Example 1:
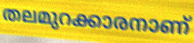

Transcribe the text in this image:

തലമുറക്കാരനാണ്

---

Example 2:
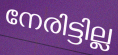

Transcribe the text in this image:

നേരിട്ടില്ല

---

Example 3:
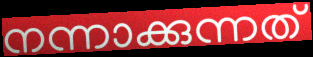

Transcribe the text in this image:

നന്നാക്കുന്നത്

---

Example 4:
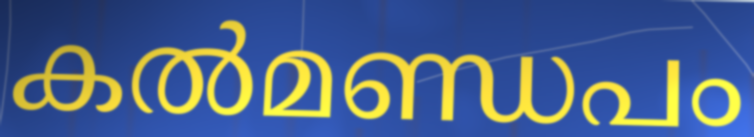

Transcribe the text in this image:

കൽമണ്ഡപം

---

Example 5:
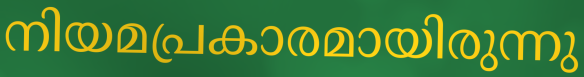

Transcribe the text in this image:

നിയമപ്രകാരമായിരുന്നു